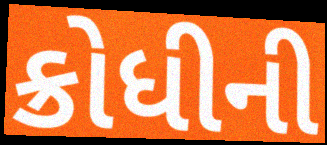
ક્રોધીની